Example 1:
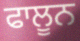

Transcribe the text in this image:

ਫਾਲੂਨ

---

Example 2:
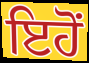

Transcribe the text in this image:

ਇਹੋਂ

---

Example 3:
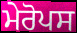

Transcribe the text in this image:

ਮੇਰੋਪਸ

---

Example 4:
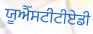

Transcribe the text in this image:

ਯੂਐੱਸਟੀਟੀਏਡੀ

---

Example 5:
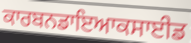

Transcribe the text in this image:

ਕਾਰਬਨਡਾਇਆਕਸਾਈਡ